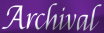
Archival